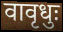
वावृधुः